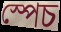
স্পেচ